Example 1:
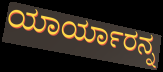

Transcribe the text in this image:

ಯಾರ್ಯಾರನ್ನ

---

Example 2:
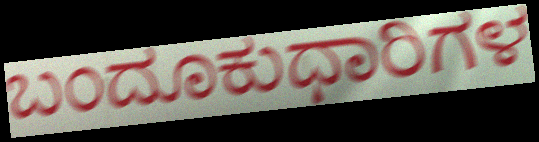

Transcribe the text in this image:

ಬಂದೂಕುಧಾರಿಗಳ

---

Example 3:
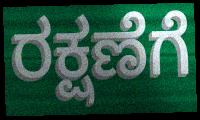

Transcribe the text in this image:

ರಕ್ಷಣೆಗೆ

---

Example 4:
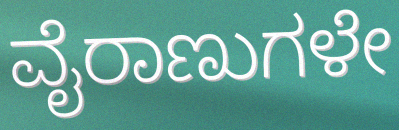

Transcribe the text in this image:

ವೈರಾಣುಗಳೇ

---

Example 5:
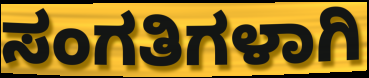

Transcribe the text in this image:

ಸಂಗತಿಗಳಾಗಿ